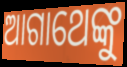
ଆଗାଥେଙ୍କୁ